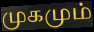
முகமும்